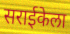
सराईकेला